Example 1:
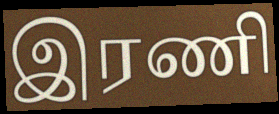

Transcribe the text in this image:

இரணி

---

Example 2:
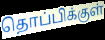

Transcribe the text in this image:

தொப்பிக்குள்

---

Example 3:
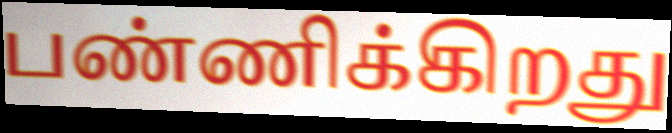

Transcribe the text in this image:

பண்ணிக்கிறது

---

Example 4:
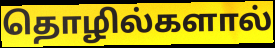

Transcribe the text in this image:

தொழில்களால்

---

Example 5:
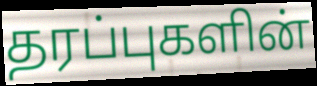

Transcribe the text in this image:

தரப்புகளின்